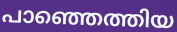
പാഞ്ഞെത്തിയ